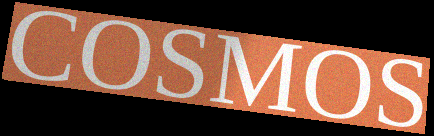
COSMOS